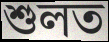
শুলত